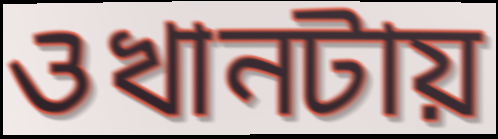
ওখানটায়